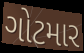
ગોટમાર